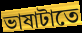
ভাষাটাতে